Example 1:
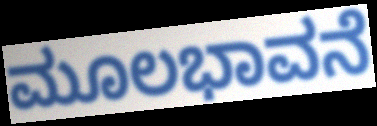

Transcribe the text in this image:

ಮೂಲಭಾವನೆ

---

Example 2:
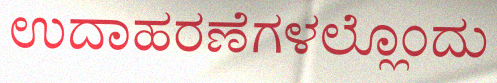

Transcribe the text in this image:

ಉದಾಹರಣೆಗಳಲ್ಲೊಂದು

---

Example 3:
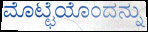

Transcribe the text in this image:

ಮೊಟ್ಟೆಯೊಂದನ್ನು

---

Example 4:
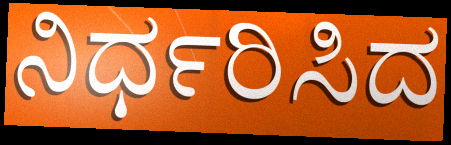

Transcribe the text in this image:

ನಿರ್ಧರಿಸಿದ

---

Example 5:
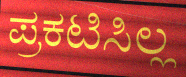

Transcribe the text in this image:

ಪ್ರಕಟಿಸಿಲ್ಲ